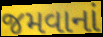
જમવાનાં